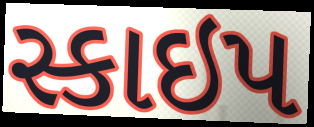
સ્કાઇપ